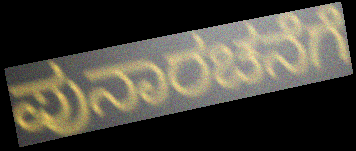
ಪುನಾರಚನೆಗೆ